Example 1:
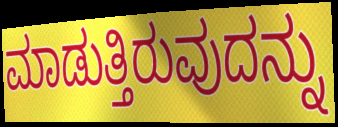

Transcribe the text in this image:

ಮಾಡುತ್ತಿರುವುದನ್ನು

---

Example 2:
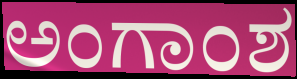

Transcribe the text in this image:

ಅಂಗಾಂಶ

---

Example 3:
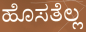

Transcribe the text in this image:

ಹೊಸತೆಲ್ಲ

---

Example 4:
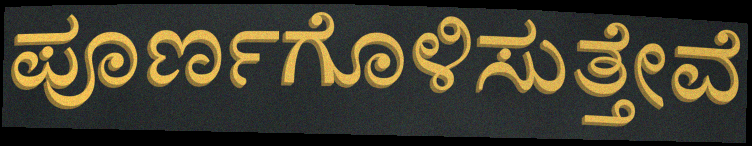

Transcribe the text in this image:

ಪೂರ್ಣಗೊಳಿಸುತ್ತೇವೆ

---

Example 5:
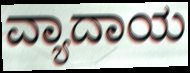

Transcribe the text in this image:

ವ್ಯಾದಾಯ